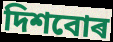
দিশবোৰ